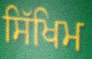
ਸਿੱਖਿਮ